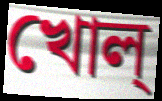
খোল্